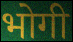
भोगी